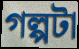
গল্পটা